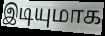
இடியுமாக